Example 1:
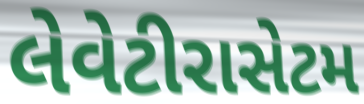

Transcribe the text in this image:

લેવેટીરાસેટમ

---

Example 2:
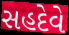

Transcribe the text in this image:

સહદેવે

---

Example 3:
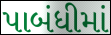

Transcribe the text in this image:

પાબંધીમાં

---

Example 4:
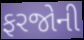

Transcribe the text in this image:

ફરજોની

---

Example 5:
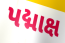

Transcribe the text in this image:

પદ્માક્ષ